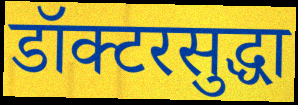
डॉक्टरसुद्धा